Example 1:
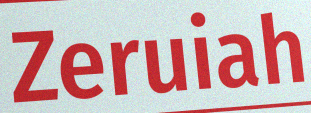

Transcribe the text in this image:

Zeruiah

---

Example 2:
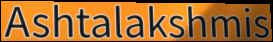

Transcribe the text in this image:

Ashtalakshmis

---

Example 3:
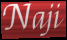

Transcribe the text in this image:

Naji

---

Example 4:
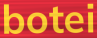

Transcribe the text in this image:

botei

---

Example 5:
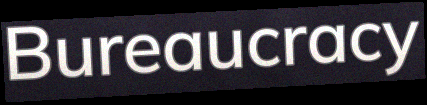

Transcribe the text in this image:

Bureaucracy